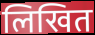
लिखित